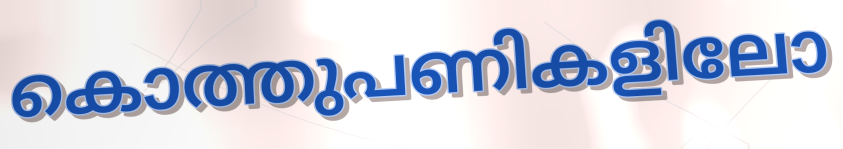
കൊത്തുപണികളിലോ